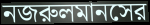
নজরুলমানসের